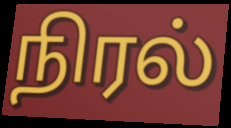
நிரல்